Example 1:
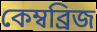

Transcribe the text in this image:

কেম্বব্ৰিজ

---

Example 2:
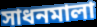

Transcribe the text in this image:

সাধনমালা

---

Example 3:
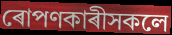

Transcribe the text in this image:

ৰোপণকাৰীসকলে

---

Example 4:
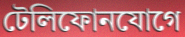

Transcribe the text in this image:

টেলিফোনযোগে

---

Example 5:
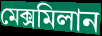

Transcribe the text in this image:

মেক্সমিলান